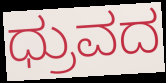
ಧ್ರುವದ